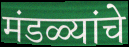
मंडळ्यांचे